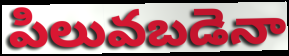
పిలువబడెనా